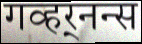
गव्हर्नन्स